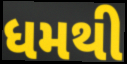
ધમથી